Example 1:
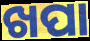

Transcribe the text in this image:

ଖପା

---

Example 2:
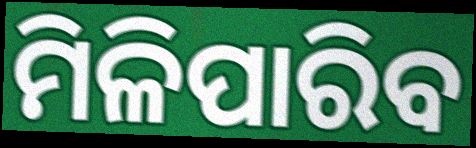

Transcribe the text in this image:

ମିଳିପାରିବ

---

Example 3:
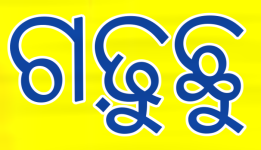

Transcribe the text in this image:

ଗଢ଼ୁଛୁ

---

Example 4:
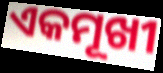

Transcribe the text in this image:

ଏକମୂଖୀ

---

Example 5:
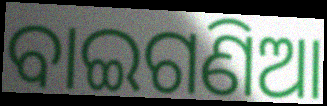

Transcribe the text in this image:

ବାଇଗଣିଆ